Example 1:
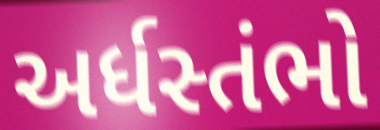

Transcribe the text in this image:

અર્ધસ્તંભો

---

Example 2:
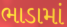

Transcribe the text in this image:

ભાડામાં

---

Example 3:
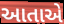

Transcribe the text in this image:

આતાએ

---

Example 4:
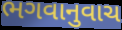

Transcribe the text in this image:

ભગવાનુવાચ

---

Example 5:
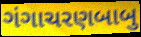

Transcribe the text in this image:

ગંગાચરણબાબુ